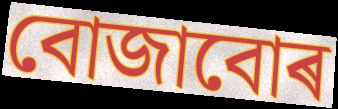
বোজাবোৰ